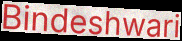
Bindeshwari